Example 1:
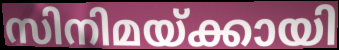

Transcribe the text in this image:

സിനിമയ്ക്കായി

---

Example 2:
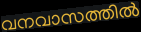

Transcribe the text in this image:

വനവാസത്തിൽ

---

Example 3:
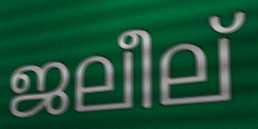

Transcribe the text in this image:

ജലീല്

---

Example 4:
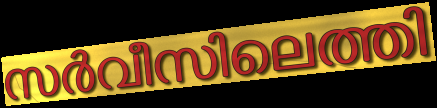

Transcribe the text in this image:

സർവീസിലെത്തി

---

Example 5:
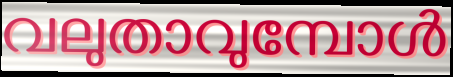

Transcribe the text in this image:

വലുതാവുമ്പോൾ